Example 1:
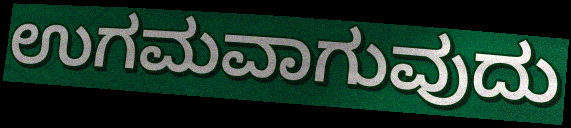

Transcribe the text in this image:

ಉಗಮವಾಗುವುದು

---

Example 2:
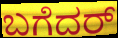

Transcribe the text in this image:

ಬಗೆದರ್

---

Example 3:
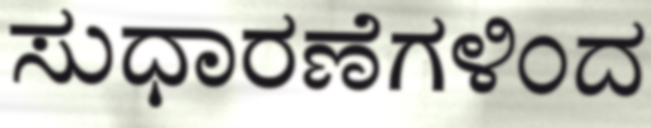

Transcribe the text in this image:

ಸುಧಾರಣೆಗಳಿಂದ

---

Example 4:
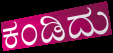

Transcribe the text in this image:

ಕಂಡಿದು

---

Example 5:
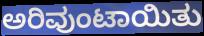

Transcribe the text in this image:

ಅರಿವುಂಟಾಯಿತು